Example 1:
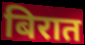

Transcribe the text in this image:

बिरात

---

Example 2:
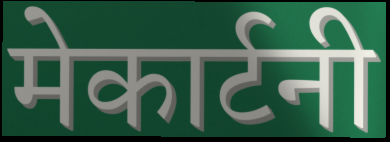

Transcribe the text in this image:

मेकार्टनी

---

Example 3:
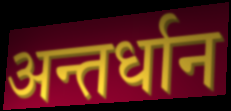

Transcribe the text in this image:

अन्तर्धान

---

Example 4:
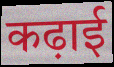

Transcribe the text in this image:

कढ़ाई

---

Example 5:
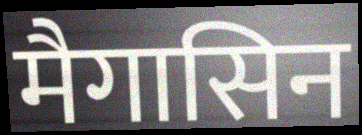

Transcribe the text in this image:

मैगासिन